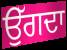
ਉੱਗਦਾ